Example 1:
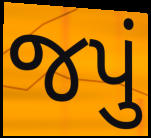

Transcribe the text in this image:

જપું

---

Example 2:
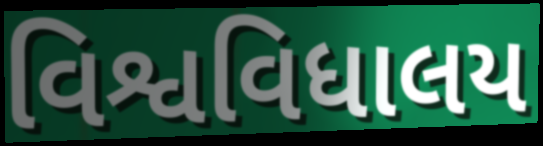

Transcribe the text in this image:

વિશ્વવિધાલય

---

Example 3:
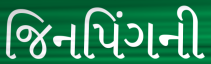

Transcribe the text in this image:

જિનપિંગની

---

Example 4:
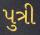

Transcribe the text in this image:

પુત્રી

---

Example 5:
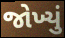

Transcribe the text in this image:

જોખ્યું